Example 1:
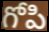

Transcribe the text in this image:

గోపి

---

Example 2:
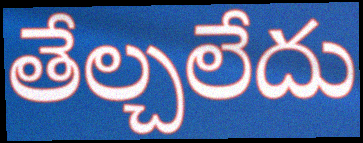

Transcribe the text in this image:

తేల్చలేదు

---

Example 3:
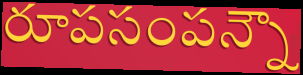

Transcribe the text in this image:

రూపసంపన్నౌ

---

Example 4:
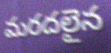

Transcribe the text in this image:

మరదలైన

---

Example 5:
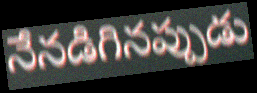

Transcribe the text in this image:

నేనడిగినప్పుడు